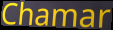
Chamar